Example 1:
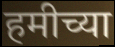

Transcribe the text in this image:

हमीच्या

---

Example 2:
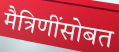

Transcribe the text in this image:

मैत्रिणींसोबत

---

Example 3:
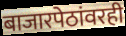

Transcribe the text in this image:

बाजारपेठांवरही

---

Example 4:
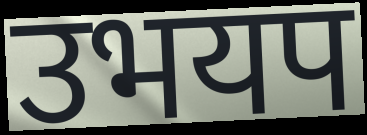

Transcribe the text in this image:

उभयप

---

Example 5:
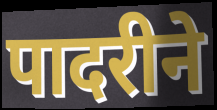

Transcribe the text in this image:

पादरीने